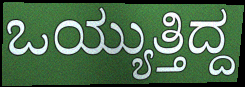
ಒಯ್ಯುತ್ತಿದ್ದ